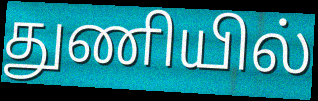
துணியில்